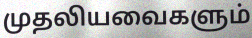
முதலியவைகளும்